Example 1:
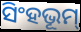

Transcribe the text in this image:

ସିଂହଭୂମ୍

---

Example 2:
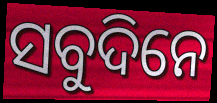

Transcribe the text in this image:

ସବୁଦିନେ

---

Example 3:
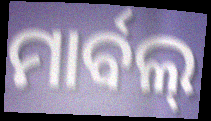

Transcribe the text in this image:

ମାର୍ବଲ୍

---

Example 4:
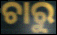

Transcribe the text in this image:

ଚାରୁ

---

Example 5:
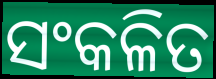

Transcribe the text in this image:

ସଂକଳିତ